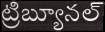
ట్రిబ్యూనల్